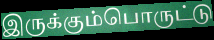
இருக்கும்பொருட்டு